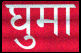
घुमा